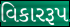
વિકારરૂપ